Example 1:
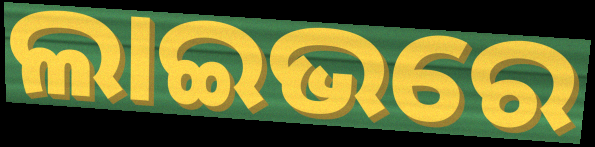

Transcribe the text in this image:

ଲାଇଭରେ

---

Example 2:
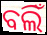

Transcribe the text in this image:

ବଲିଁ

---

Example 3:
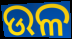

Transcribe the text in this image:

ଉଳ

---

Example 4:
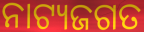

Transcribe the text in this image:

ନାଟ୍ୟଜଗତ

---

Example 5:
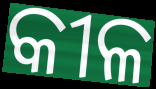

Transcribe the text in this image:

କୀଳ